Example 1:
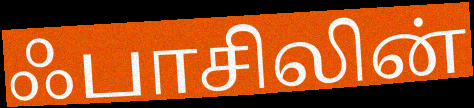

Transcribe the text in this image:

ஃபாசிலின்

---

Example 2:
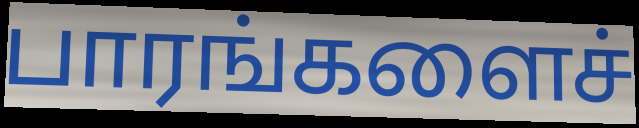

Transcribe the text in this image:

பாரங்களைச்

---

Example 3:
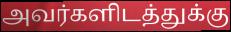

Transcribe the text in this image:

அவர்களிடத்துக்கு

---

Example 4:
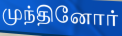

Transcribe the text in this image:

முந்தினோர்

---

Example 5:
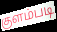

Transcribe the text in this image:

குளம்படி